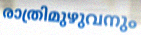
രാത്രിമുഴുവനും